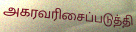
அகரவரிசைப்படுத்தி